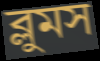
ব্লুমস